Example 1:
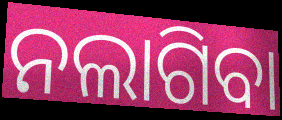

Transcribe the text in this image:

ନଲାଗିବା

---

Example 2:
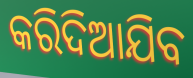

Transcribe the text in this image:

କରିଦିଆଯିବ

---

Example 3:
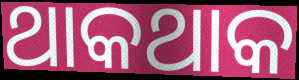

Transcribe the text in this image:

ଥାକଥାକ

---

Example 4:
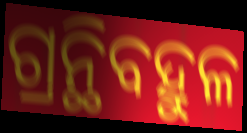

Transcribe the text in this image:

ଗ୍ରନ୍ଥିବହୁଳ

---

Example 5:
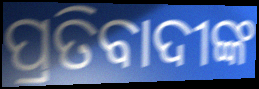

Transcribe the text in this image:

ପ୍ରତିବାଦୀଙ୍କ